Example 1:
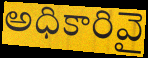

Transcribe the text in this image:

అధికారివై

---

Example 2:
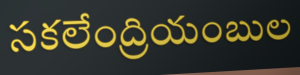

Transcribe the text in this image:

సకలేంద్రియంబుల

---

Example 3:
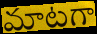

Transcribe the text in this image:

మాటగా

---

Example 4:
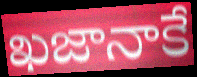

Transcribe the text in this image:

ఖజానాకే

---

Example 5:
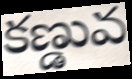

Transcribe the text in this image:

కణ్డువ